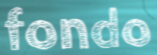
fondo